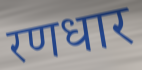
रणधार